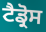
ਟੈਡ੍ਰੋਸ